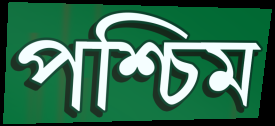
পশ্চিম